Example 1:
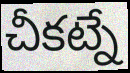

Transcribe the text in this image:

చీకట్నే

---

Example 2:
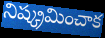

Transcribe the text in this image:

నిష్క్రమించాక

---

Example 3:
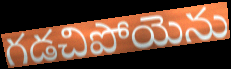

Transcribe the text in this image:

గడచిపోయెను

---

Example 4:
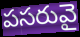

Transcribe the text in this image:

పసరువై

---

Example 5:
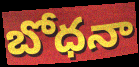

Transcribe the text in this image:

బోధనా